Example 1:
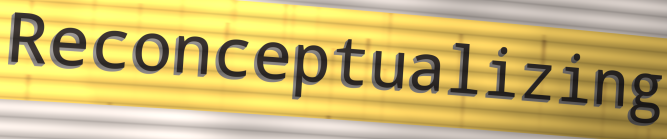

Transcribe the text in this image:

Reconceptualizing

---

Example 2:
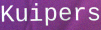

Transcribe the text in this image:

Kuipers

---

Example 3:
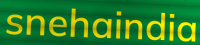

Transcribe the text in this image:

snehaindia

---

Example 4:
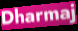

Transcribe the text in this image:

Dharmaj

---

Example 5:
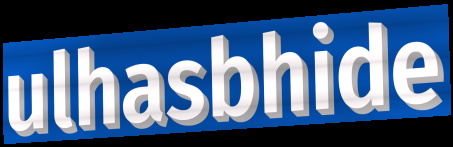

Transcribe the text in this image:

ulhasbhide